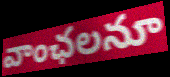
వాంఛలనూ